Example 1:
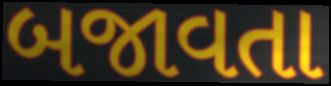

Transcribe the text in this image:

બજાવતા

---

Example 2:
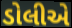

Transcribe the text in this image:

ડોલીએ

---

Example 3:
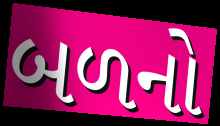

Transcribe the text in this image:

બળનો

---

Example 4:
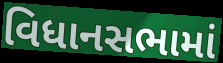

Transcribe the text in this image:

વિધાનસભામાં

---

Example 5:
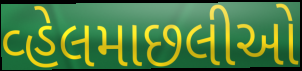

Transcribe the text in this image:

વ્હેલમાછલીઓ